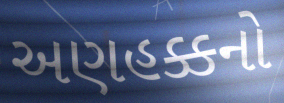
અણહક્કનો